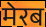
मेरब